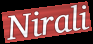
Nirali